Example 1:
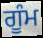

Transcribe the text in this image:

ਗੂੰਮ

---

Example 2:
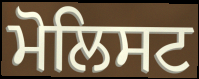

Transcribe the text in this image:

ਮੋਲਿਸਟ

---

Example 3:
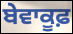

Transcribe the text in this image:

ਬੇਵਾਕੂਫ਼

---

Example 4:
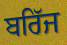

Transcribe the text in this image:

ਬਰਿੱਜ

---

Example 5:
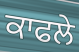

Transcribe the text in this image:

ਕਾਫਲੇ